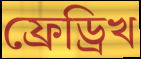
ফ্ৰেড্ৰিখ